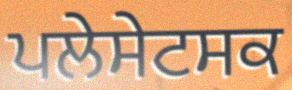
ਪਲੇਸੇਟਸਕ